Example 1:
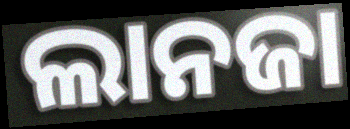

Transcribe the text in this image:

ଲାନଜା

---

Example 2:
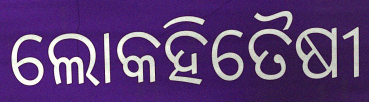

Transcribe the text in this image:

ଲୋକହିତୈଷୀ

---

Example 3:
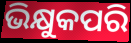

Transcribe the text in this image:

ଭିକ୍ଷୁକପରି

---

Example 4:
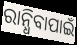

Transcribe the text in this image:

ରାନ୍ଧିବାପାଇଁ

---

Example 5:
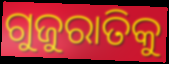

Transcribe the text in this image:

ଗୁଜୁରାତିକୁ